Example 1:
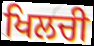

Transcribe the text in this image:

ਖਿਲਚੀ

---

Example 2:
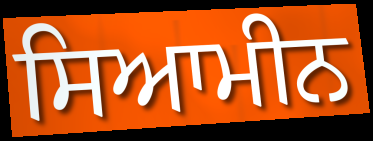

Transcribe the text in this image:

ਸਿਆਮੀਨ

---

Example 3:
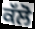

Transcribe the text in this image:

ਕੱਲੋ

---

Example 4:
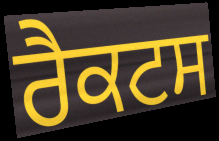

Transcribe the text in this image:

ਰੈਕਟਸ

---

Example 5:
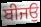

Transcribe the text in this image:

ਬੀਜਉ